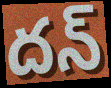
దన్